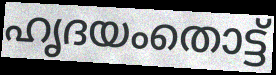
ഹൃദയംതൊട്ട്